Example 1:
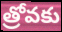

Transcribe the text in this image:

త్రోవకు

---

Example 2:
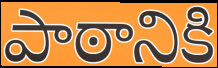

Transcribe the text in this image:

పాఠానికి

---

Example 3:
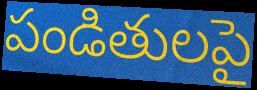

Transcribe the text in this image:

పండితులపై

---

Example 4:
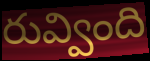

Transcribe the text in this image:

రువ్వింది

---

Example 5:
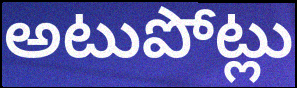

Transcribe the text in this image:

అటుపోట్లు